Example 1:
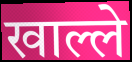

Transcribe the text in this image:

खाल्ले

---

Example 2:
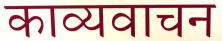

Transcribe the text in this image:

काव्यवाचन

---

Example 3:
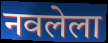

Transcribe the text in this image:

नवलेला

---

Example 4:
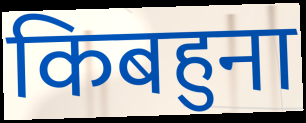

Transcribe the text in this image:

किबहुना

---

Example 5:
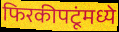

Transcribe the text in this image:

फिरकीपटूंमध्ये